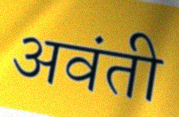
अवंती